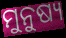
ମୁନୁଷ୍ୟ